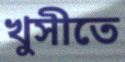
খুসীতে